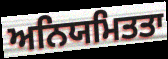
ਅਨਿਯਮਿਤਤਾ